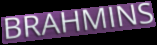
BRAHMINS